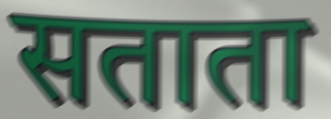
सताता